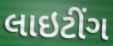
લાઇટીંગ